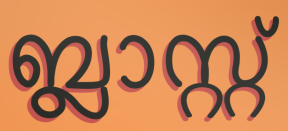
ബ്ലാസ്റ്റ്